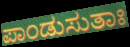
ಪಾಂಡುಸುತಾಃ